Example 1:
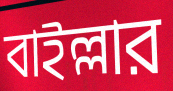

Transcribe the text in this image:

বাইল্লার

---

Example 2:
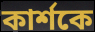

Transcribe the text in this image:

কার্শকে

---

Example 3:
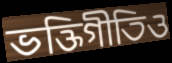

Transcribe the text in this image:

ভক্তিগীতিও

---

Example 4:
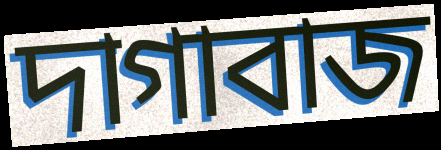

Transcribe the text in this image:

দাগাবাজ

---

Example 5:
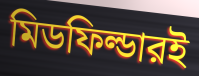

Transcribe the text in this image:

মিডফিল্ডারই